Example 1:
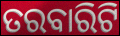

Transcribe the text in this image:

ତରବାରିଟି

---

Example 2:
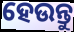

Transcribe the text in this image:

ହେଉନ୍ତୁ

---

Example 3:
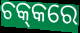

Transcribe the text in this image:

ଚକ୍‌କରେ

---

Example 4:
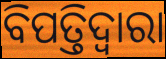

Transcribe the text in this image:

ବିପତ୍ତିଦ୍ୱାରା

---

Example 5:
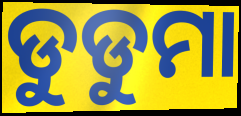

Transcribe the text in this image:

ଡୁଡୁମା